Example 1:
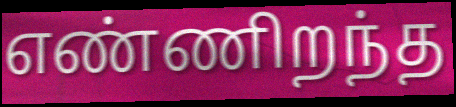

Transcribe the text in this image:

எண்ணிறந்த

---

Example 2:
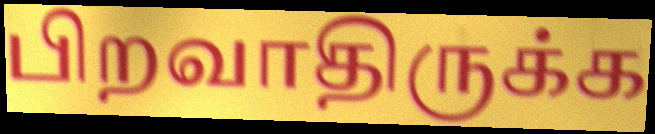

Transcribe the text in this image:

பிறவாதிருக்க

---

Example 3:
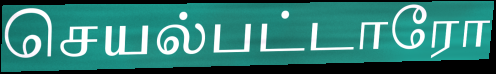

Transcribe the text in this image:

செயல்பட்டாரோ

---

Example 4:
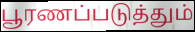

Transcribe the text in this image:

பூரணப்படுத்தும்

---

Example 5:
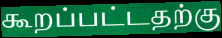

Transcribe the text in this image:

கூறப்பட்டதற்கு